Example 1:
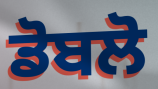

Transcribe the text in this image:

ਡੋਬਲੋ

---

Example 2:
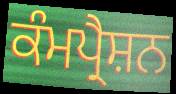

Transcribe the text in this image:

ਕੰਮਪ੍ਰੈਸ਼ਨ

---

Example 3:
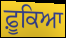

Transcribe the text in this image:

ਫ਼ੂਕਿਆ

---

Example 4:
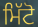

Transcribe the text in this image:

ਮਿੱਟੋ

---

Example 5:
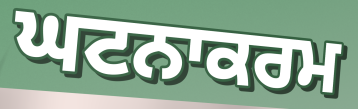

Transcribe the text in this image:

ਘਟਨਾਕਰਮ